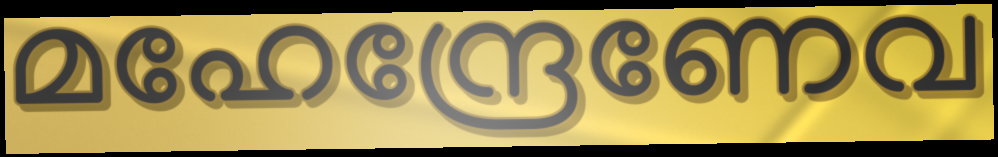
മഹേന്ദ്രേണേവ